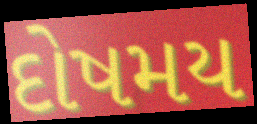
દોષમય